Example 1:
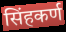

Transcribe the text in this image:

सिंहकर्ण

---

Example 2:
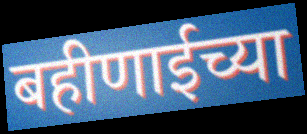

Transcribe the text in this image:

बहीणाईच्या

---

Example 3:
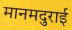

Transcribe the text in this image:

मानमदुराई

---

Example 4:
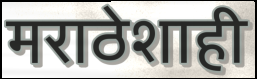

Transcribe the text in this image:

मराठेशाही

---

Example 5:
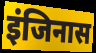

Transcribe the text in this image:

इंजिनास